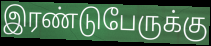
இரண்டுபேருக்கு